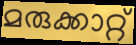
മരുക്കാറ്റ്